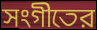
সংগীতের